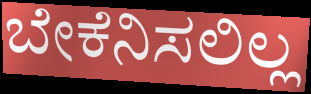
ಬೇಕೆನಿಸಲಿಲ್ಲ